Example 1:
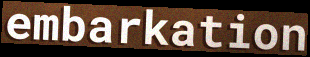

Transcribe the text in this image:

embarkation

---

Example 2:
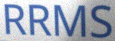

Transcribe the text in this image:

RRMS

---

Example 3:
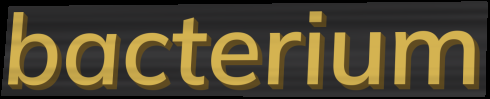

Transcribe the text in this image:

bacterium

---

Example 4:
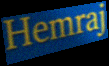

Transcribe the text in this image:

Hemraj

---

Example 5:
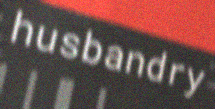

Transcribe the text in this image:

husbandry